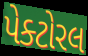
પેક્ટોરલ